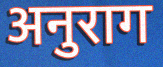
अनुराग